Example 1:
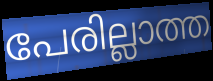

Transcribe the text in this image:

പേരില്ലാത്ത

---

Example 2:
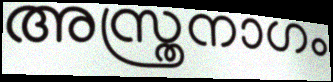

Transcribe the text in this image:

അസ്ത്രനാഗം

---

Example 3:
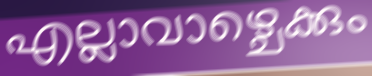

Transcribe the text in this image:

എല്ലാവാഴ്ചെക്കും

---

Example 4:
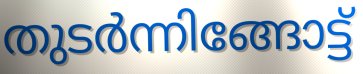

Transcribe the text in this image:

തുടർന്നിങ്ങോട്ട്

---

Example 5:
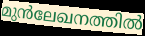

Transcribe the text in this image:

മുൻലേഖനത്തിൽ